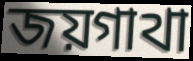
জয়গাথা